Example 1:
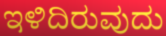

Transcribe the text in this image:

ಇಳಿದಿರುವುದು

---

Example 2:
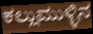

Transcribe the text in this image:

ಕಲ್ಲುಮುಳ್ಳಿನ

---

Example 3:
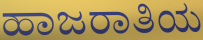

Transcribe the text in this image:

ಹಾಜರಾತಿಯ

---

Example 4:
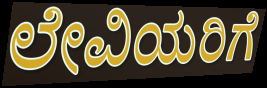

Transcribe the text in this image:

ಲೇವಿಯರಿಗೆ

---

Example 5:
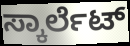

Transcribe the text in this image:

ಸ್ಕಾರ್ಲೆಟ್